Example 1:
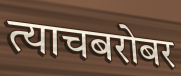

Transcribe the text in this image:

त्‍याचबरोबर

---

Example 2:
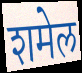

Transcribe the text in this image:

शमेल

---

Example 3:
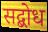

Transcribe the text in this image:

सद्बोध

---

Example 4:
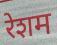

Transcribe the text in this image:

रेशम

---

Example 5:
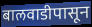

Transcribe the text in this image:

बालवाडीपासून